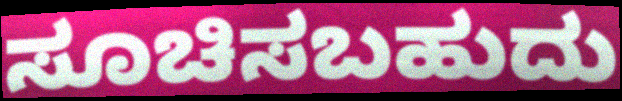
ಸೂಚಿಸಬಹುದು